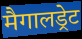
मैगालड्रेट